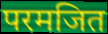
परमजित